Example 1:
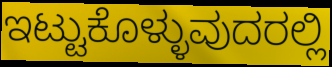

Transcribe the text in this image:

ಇಟ್ಟುಕೊಳ್ಳುವುದರಲ್ಲಿ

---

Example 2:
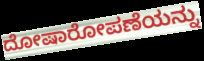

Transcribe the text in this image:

ದೋಷಾರೋಪಣೆಯನ್ನು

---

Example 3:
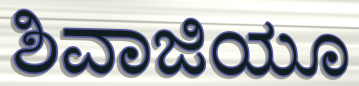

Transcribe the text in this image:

ಶಿವಾಜಿಯೂ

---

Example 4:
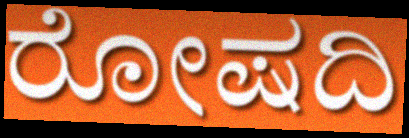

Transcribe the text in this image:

ರೋಷದಿ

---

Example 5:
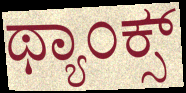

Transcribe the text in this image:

ಥ್ಯಾಂಕ್ಸ್